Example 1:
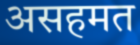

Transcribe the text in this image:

असहमत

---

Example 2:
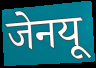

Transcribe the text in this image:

जेनयू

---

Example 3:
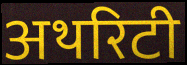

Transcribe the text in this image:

अथरिटी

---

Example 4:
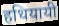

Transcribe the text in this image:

हथियायी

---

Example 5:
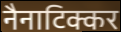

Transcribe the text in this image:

नैनाटिक्कर